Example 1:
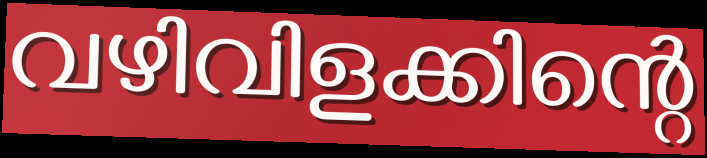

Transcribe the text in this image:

വഴിവിളക്കിന്റെ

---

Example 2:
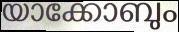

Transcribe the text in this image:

യാക്കോബും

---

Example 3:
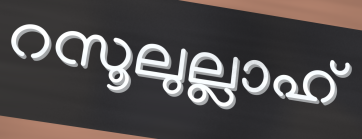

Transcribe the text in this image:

റസൂലുല്ലാഹ്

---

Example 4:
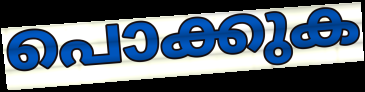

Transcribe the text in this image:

പൊക്കുക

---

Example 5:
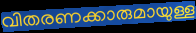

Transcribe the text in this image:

വിതരണക്കാരുമായുള്ള